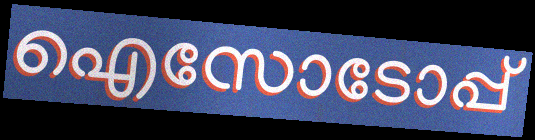
ഐസോടോപ്പ്